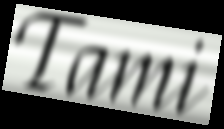
Tami